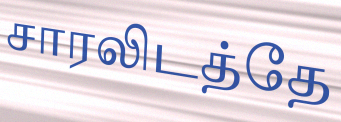
சாரலிடத்தே